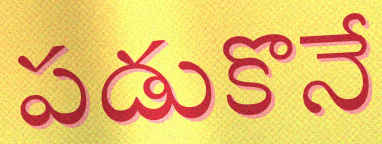
పడుకొనే